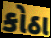
કોઠા